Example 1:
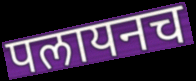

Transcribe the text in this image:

पलायनच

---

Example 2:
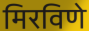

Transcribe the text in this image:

मिरविणे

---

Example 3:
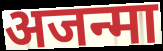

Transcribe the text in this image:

अजन्मा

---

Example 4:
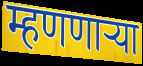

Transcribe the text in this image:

म्हणणाऱ्या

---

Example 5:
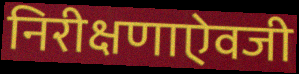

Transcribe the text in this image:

निरीक्षणाऐवजी